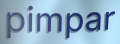
pimpar